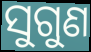
ସୁଗୁଣ